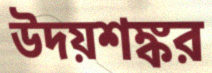
উদয়শঙ্কর